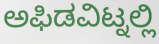
ಅಫಿಡವಿಟ್ನಲ್ಲಿ